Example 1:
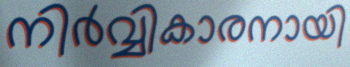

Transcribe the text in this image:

നിർവ്വികാരനായി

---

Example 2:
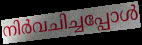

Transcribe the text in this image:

നിർവചിച്ചപ്പോൾ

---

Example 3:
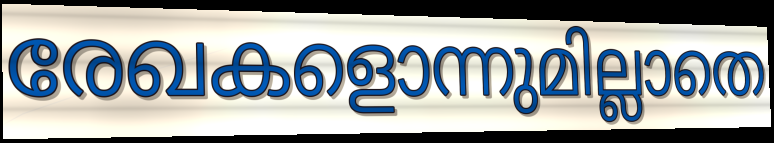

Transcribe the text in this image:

രേഖകളൊന്നുമില്ലാതെ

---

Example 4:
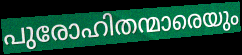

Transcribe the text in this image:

പുരോഹിതന്മാരെയും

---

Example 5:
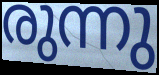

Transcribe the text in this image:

രുന്നു